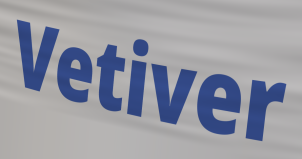
Vetiver